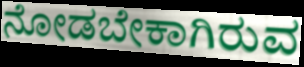
ನೋಡಬೇಕಾಗಿರುವ